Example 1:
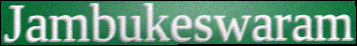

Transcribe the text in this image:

Jambukeswaram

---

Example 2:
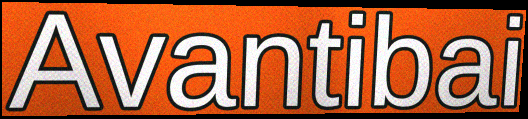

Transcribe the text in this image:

Avantibai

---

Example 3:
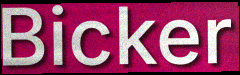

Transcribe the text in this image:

Bicker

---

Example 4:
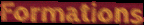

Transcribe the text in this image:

Formations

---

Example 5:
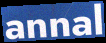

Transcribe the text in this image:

annal